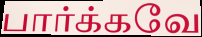
பார்க்கவே